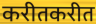
करीतकरीत